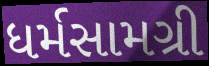
ધર્મસામગ્રી